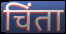
चिंता